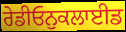
ਰੇਡੀਓਨੁਕਲਾਈਡ